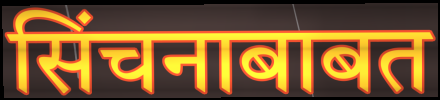
सिंचनाबाबत